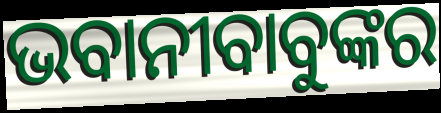
ଭବାନୀବାବୁଙ୍କର